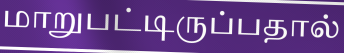
மாறுபட்டிருப்பதால்